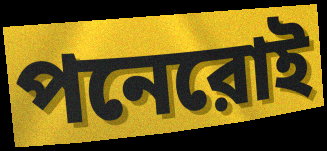
পনেরোই